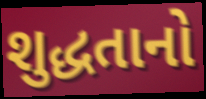
શુદ્ધતાનો